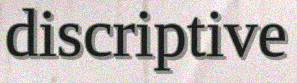
discriptive